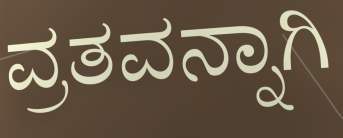
ವ್ರತವನ್ನಾಗಿ